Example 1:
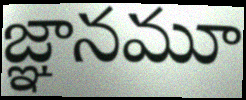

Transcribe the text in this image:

జ్ఞానమూ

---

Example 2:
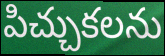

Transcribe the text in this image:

పిచ్చుకలను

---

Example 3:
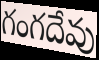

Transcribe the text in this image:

గంగదేవు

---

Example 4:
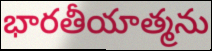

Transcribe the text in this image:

భారతీయాత్మను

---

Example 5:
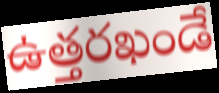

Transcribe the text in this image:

ఉత్తరఖండే